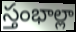
స్తంభాల్లా